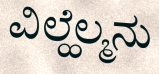
ವಿಲ್ಹೆಲ್ಮನು